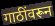
गाठींवरून